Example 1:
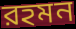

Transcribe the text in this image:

রহমন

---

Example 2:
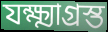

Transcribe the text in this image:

যক্ষ্মাগ্রস্ত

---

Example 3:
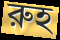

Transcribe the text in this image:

রুহ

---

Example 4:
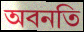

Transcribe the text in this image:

অবনতি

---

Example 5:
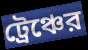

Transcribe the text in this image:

ট্রেঞ্চের